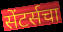
सेंटर्सचा